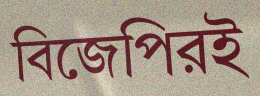
বিজেপিরই